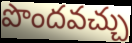
పొందవచ్చు